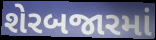
શેરબજારમાં